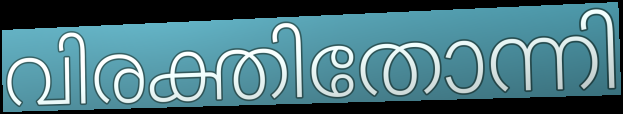
വിരക്തിതോന്നി